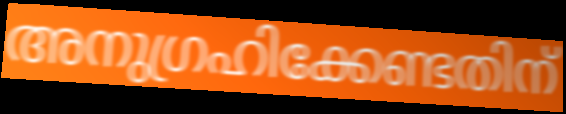
അനുഗ്രഹിക്കേണ്ടതിന്